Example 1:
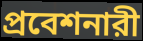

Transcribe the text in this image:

প্রবেশনারী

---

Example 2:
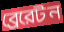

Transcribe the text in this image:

ব্রেরেটন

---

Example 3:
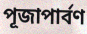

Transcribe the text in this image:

পূজাপার্বণ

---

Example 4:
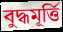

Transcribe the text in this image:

বুদ্ধমূর্ত্তি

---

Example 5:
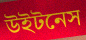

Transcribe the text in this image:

উইটনেস